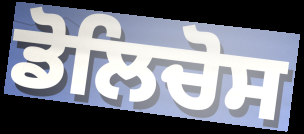
ਡੋਲਿਚੋਸ